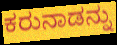
ಕರುನಾಡನ್ನು